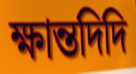
ক্ষান্তদিদি